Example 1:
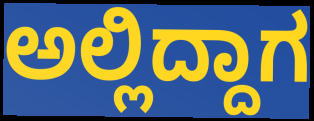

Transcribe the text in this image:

ಅಲ್ಲಿದ್ದಾಗ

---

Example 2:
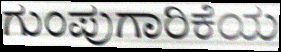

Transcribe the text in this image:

ಗುಂಪುಗಾರಿಕೆಯ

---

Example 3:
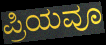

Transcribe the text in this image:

ಪ್ರಿಯವೂ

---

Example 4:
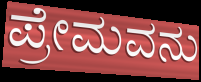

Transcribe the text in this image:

ಪ್ರೇಮವನು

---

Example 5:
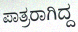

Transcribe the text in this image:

ಪಾತ್ರರಾಗಿದ್ದ